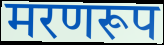
मरणरूप